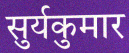
सुर्यकुमार